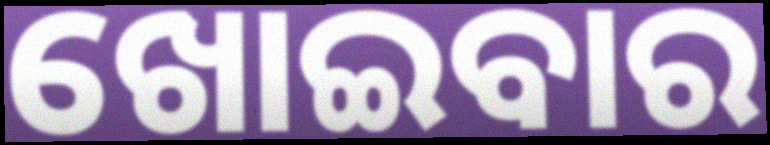
ଖୋଇବାର